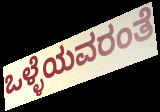
ಒಳ್ಳೆಯವರಂತೆ